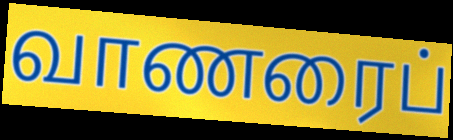
வாணரைப்